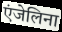
एंजेलिना